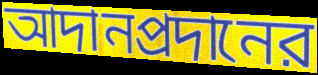
আদানপ্রদানের